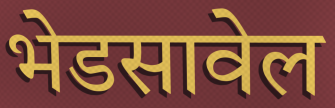
भेडसावेल